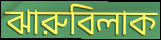
ঝাৰুবিলাক